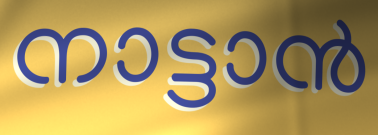
നാട്ടാൻ